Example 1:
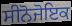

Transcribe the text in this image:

ਸੀਨੋਜੋਇਕ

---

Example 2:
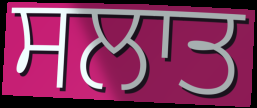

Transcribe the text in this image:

ਸਲਾਤ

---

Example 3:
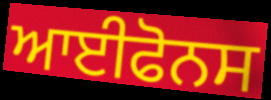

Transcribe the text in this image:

ਆਈਫੋਨਸ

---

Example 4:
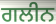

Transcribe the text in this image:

ਗਲੀਨ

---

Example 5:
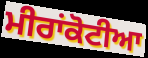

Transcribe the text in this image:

ਮੀਰਾਂਕੋਟੀਆ